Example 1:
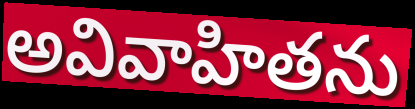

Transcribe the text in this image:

అవివాహితను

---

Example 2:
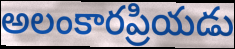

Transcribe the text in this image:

అలంకారప్రియడు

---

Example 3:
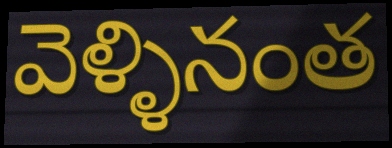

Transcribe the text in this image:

వెళ్ళినంత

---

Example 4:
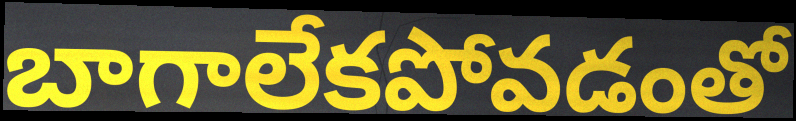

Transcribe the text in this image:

బాగాలేకపోవడంతో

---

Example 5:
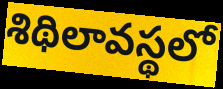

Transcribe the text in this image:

శిథిలావస్థలో